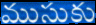
ముసుకు